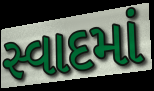
સ્વાદમાં